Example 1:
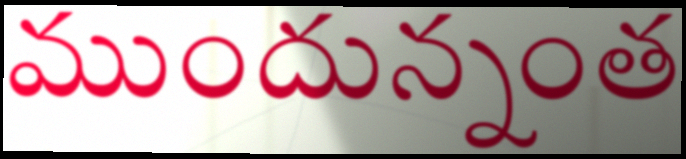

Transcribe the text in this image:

ముందున్నంత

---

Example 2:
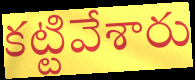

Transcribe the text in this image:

కట్టివేశారు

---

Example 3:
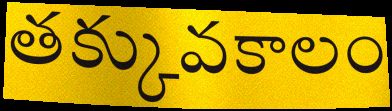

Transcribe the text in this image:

తక్కువకాలం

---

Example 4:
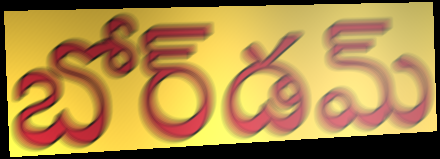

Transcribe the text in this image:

బోర్‌డమ్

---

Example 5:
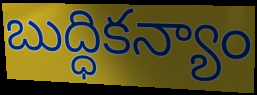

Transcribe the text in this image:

బుద్ధికన్యాం